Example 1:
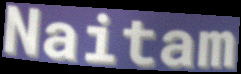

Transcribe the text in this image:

Naitam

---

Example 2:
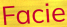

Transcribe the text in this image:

Facie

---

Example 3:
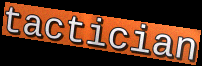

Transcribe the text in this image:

tactician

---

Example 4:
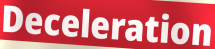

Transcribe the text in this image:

Deceleration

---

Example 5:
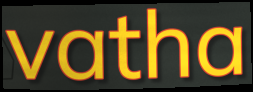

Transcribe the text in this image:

vatha